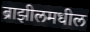
ब्राझीलमधील